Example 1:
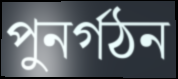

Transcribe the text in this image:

পুনৰ্গঠন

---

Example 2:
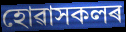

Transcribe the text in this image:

হোৱাসকলৰ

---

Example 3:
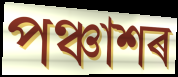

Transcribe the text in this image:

পঞ্চাশৰ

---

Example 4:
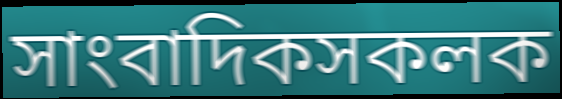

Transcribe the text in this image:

সাংবাদিকসকলক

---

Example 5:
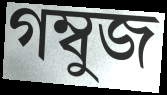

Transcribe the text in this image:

গম্বুজ